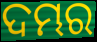
ଦମ୍ଭର